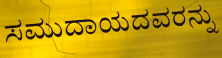
ಸಮುದಾಯದವರನ್ನು